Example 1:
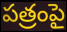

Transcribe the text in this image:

పత్రంపై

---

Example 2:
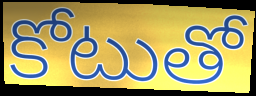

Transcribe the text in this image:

కోటుతో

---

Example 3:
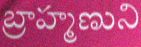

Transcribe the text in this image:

బ్రాహ్మణుని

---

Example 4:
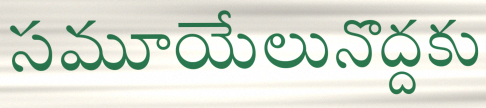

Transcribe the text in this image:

సమూయేలునొద్దకు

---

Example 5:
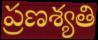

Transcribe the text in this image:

ప్రణశ్యతి